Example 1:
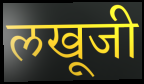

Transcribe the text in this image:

लखूजी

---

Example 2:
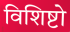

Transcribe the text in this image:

विशिष्टो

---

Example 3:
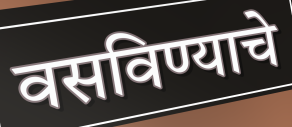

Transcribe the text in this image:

वसविण्याचे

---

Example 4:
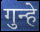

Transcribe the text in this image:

गुन्हे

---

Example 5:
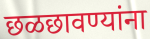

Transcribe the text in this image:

छळछावण्यांना